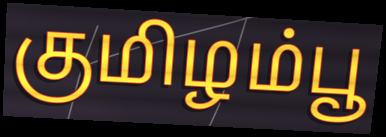
குமிழம்பூ